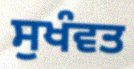
ਸੁਖੰਵਤ